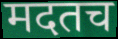
मदतच